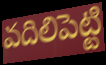
వదిలిపెట్టి